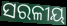
ସରଳୀୟ